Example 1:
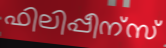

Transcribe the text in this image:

ഫിലിപ്പീന്സ്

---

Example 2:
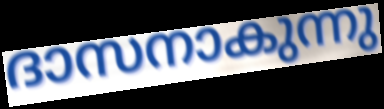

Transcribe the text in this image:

ദാസനാകുന്നു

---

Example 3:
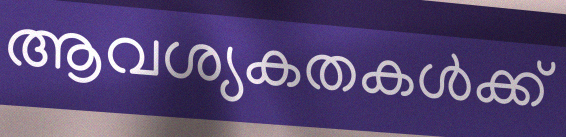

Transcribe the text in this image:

ആവശ്യകതകൾക്ക്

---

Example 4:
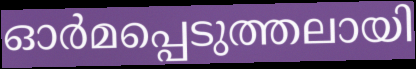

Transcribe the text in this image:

ഓർമപ്പെടുത്തലായി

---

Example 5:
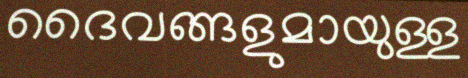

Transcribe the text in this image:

ദൈവങ്ങളുമായുള്ള